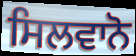
ਸਿਲਵਾਨੋ